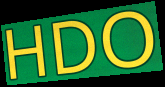
HDO